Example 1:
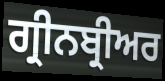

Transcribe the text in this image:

ਗ੍ਰੀਨਬ੍ਰੀਅਰ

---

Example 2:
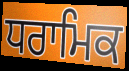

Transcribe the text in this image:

ਧਰਾਮਿਕ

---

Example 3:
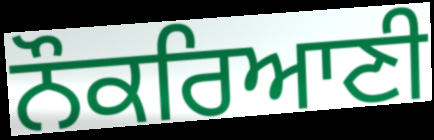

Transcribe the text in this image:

ਨੌਕਰਿਆਣੀ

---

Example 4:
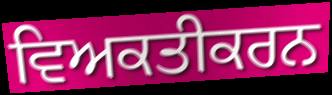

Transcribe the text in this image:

ਵਿਅਕਤੀਕਰਨ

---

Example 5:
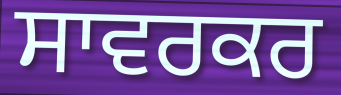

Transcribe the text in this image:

ਸਾਵਰਕਰ